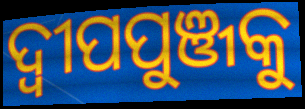
ଦ୍ଵୀପପୁଞ୍ଜକୁ